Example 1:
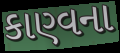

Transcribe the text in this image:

કાણ્વના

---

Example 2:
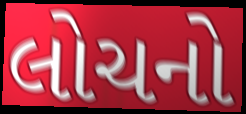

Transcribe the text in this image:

લોચનો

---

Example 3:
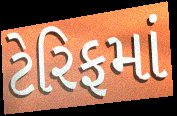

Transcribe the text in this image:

ટેરિફમાં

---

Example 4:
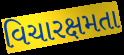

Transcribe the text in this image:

વિચારક્ષમતા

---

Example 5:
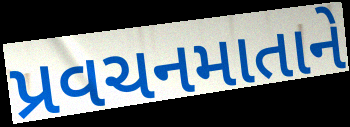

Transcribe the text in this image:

પ્રવચનમાતાને